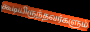
கூடியிருந்தவர்களும்